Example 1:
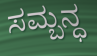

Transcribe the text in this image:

ಸಮ್ಬನ್ಧ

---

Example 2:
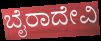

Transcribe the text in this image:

ಬೈರಾದೇವಿ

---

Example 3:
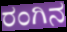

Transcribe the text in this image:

ರಂಗಿನ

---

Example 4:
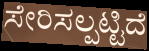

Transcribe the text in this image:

ಸೇರಿಸಲ್ಪಟ್ಟಿದೆ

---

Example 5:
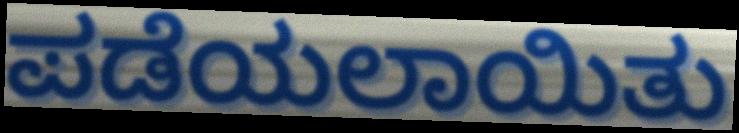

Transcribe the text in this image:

ಪಡೆಯಲಾಯಿತು